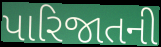
પારિજાતની